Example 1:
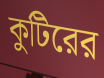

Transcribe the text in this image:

কুটিরের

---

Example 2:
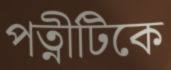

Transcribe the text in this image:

পত্নীটিকে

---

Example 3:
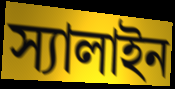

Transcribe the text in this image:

স্যালাইন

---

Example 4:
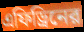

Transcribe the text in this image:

এফিড্রিনের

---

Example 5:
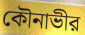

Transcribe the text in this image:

কৌনাভীর